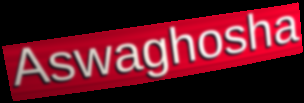
Aswaghosha